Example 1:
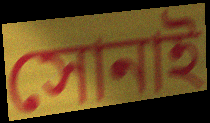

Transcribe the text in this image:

সোনাই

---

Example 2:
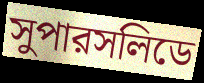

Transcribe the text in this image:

সুপারসলিডে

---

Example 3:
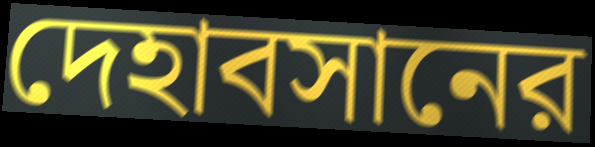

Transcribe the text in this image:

দেহাবসানের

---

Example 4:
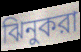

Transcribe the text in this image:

ঝিনুকরা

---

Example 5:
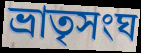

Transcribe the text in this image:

ভ্রাতৃসংঘ